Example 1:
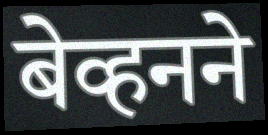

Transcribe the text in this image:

बेव्हनने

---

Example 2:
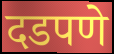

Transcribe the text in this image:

दडपणे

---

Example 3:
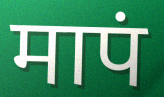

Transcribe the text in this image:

मापं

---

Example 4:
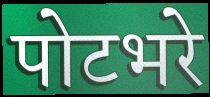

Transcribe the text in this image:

पोटभरे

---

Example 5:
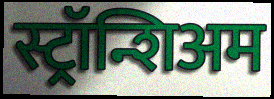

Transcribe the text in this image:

स्ट्रॉन्शिअम